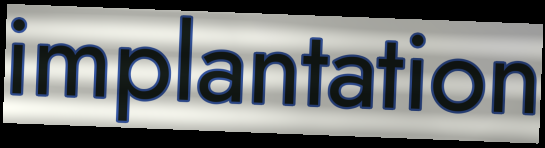
implantation